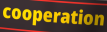
cooperation